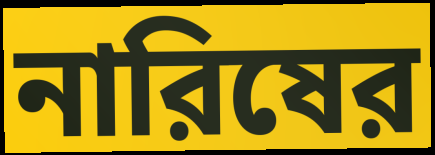
নারিষের